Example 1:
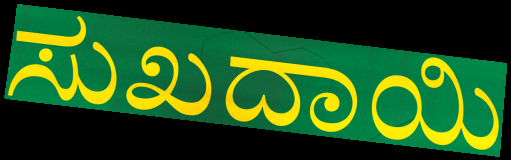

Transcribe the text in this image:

ಸುಖದಾಯಿ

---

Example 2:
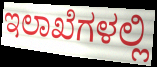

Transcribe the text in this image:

ಇಲಾಖೆಗಳಲ್ಲಿ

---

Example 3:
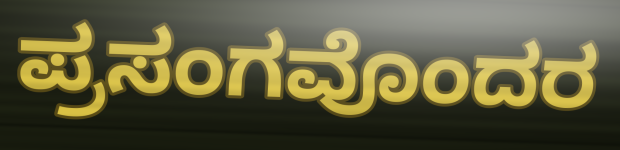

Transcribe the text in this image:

ಪ್ರಸಂಗವೊಂದರ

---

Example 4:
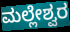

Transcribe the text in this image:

ಮಲ್ಲೇಶ್ವರ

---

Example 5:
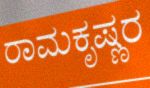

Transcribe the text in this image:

ರಾಮಕೃಷ್ಣರ